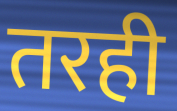
तरही